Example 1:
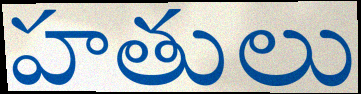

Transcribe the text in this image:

హతులు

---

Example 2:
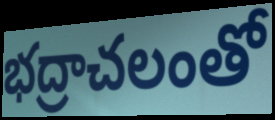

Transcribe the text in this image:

భద్రాచలంతో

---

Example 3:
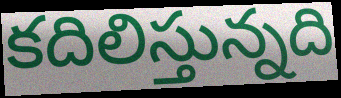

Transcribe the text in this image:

కదిలిస్తున్నది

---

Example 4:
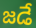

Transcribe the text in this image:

జడే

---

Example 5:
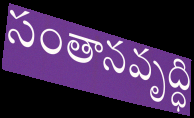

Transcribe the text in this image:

సంతానవృద్ధి